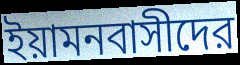
ইয়ামনবাসীদের